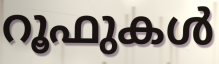
റൂഫുകൾ